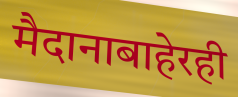
मैदानाबाहेरही